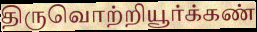
திருவொற்றியூர்க்கண்